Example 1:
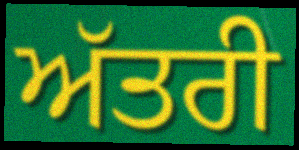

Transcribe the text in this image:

ਅੱਤਰੀ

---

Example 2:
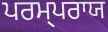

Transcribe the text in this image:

ਪਰਮ੍ਪਰਾਯ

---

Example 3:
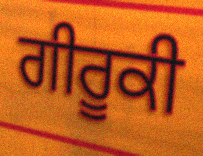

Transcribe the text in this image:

ਗੀਰੂਕੀ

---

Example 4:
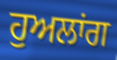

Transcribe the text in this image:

ਹੁਅਲਾਂਗ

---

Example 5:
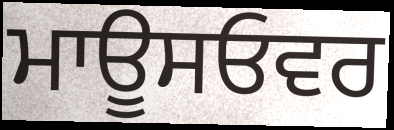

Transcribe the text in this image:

ਮਾਊਸਓਵਰ